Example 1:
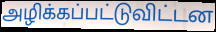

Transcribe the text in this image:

அழிக்கப்பட்டுவிட்டன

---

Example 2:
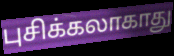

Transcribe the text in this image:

புசிக்கலாகாது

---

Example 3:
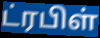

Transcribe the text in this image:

ட்ரபிள்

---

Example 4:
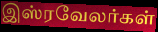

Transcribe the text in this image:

இஸ்ரவேலர்கள்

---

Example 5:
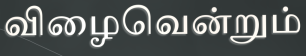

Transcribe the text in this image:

விழைவென்றும்